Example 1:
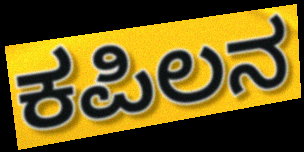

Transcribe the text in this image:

ಕಪಿಲನ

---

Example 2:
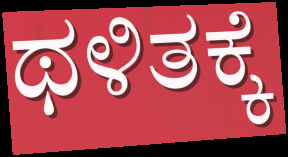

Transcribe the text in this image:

ಥಳಿತಕ್ಕೆ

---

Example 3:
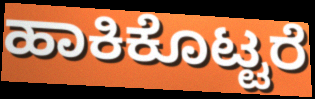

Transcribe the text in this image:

ಹಾಕಿಕೊಟ್ಟರೆ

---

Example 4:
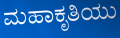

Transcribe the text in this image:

ಮಹಾಕೃತಿಯು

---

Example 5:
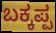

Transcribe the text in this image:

ಬಕ್ಕಪ್ಪ